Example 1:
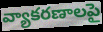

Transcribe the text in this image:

వ్యాకరణాలపై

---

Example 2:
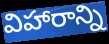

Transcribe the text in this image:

విహారాన్ని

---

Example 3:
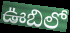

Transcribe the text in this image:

ఊబిలో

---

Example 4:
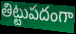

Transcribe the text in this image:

తిట్టుపదంగా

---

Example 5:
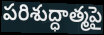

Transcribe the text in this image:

పరిశుద్ధాత్మపై